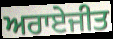
ਅਰਾਏਜੀਤ